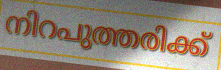
നിറപുത്തരിക്ക്